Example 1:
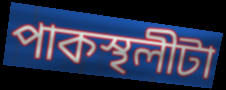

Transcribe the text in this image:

পাকস্থলীটা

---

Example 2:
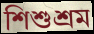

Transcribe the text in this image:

শিশুশ্রম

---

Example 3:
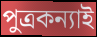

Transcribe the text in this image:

পুত্রকন্যাই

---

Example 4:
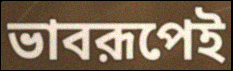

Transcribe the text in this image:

ভাবরূপেই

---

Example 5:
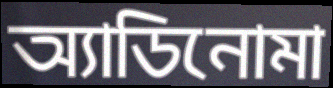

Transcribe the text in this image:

অ্যাডিনোমা